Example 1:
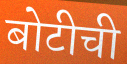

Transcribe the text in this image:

बोटीची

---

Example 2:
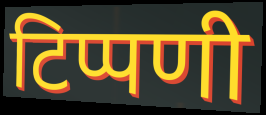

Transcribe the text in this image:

टिप्पणी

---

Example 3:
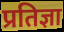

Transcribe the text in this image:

प्रतिज्ञा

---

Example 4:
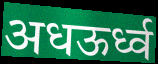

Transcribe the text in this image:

अधऊर्ध्व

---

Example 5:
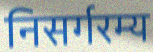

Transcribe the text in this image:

निसर्गरम्य